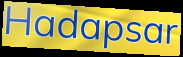
Hadapsar